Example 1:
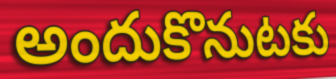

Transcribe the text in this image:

అందుకొనుటకు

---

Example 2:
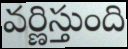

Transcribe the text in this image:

వర్ణిస్తుంది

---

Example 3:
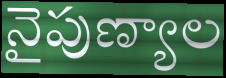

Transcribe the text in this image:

నైపుణ్యాల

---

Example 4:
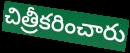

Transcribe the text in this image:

చిత్రీకరించారు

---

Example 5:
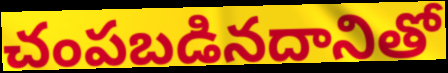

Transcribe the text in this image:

చంపబడినదానితో